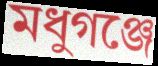
মধুগঞ্জে